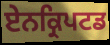
ਏਨਕ੍ਰਿਪਟਡ